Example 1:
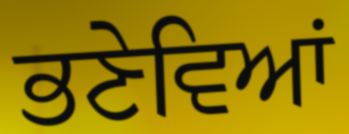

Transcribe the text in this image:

ਭਣੇਵਿਆਂ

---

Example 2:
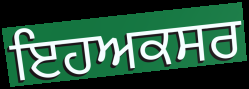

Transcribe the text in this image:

ਇਹਅਕਸਰ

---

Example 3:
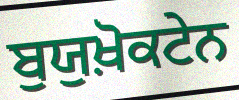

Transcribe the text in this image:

ਬੁਯੁਖ਼ੋਕਟੇਨ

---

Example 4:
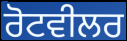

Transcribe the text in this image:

ਰੋਟਵੀਲਰ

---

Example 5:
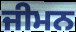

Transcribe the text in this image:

ਜੀਮਨ